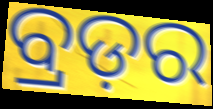
ବ୍ରଡ଼ର